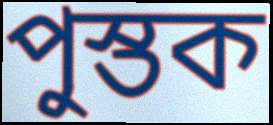
পুস্তক